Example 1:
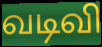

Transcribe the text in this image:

வடிவி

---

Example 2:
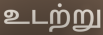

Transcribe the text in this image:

உடற்று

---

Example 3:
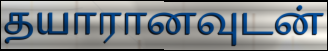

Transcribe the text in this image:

தயாரானவுடன்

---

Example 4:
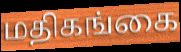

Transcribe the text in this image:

மதிகங்கை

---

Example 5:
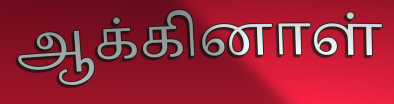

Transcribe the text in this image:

ஆக்கினாள்